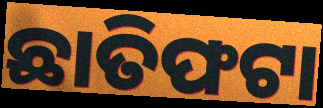
ଛାତିଫଟା